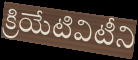
క్రియేటివిటీని